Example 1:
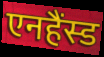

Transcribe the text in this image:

एनहैंस्ड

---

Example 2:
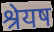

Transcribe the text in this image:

श्रेयष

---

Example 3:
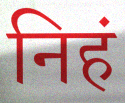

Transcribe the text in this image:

निहं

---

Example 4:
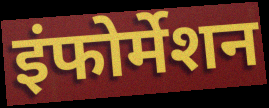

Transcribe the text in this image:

इंफोर्मेशन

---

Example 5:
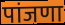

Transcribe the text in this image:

पांजणा